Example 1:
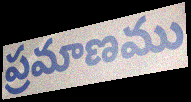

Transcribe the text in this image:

ప్రమాణము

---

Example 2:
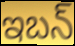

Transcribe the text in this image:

ఇబన్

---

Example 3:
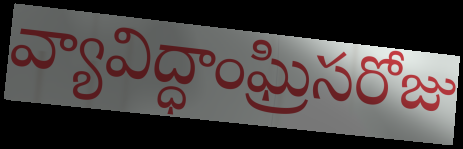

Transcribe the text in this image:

వ్యావిద్ధాంఘ్రిసరోజు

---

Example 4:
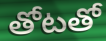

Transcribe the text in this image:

తోటతో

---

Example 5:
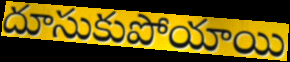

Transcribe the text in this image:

దూసుకుపోయాయి